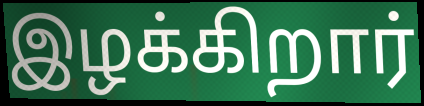
இழக்கிறார்